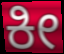
ಕೀ